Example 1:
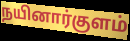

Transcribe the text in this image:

நயினார்குளம்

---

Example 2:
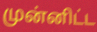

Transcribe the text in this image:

முன்னிட்ட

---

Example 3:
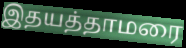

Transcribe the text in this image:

இதயத்தாமரை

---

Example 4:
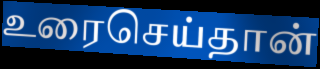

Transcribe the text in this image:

உரைசெய்தான்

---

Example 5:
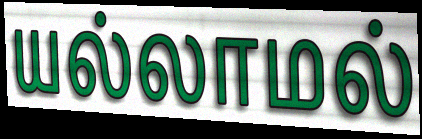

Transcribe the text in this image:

யல்லாமல்